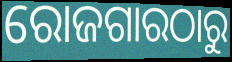
ରୋଜଗାରଠାରୁ